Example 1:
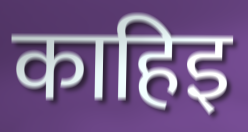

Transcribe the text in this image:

काहिइ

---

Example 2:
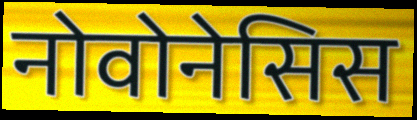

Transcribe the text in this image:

नोवोनेसिस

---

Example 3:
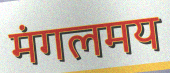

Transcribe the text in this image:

मंगलमय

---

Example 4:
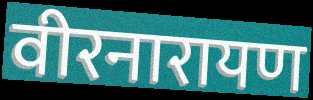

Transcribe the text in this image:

वीरनारायण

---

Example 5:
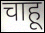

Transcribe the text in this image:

चाहू